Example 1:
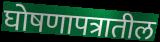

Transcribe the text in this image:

घोषणापत्रातील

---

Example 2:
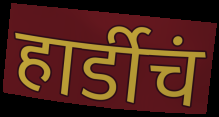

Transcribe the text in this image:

हार्डीचं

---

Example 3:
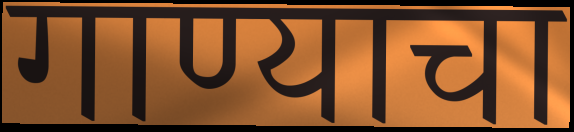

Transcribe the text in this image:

गाण्याचा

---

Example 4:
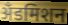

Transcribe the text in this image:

अँडमिशन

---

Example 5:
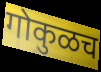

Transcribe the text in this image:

गोकुळच